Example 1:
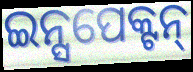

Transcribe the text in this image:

ଇନ୍ସପେକ୍ଟନ୍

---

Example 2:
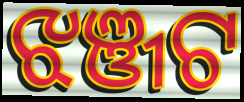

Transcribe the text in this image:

ଝଞ୍ଜଟ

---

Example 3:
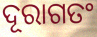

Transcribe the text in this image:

ଦୂରାଗତଂ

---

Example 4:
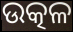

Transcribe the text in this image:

ଉତ୍କଳ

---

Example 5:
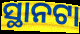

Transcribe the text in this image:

ସ୍ଥାନଟା